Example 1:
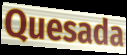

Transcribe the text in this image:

Quesada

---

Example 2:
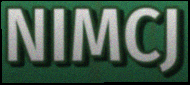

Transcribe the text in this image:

NIMCJ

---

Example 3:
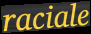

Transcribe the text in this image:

raciale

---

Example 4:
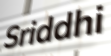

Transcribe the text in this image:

Sriddhi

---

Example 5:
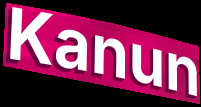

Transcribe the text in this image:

Kanun